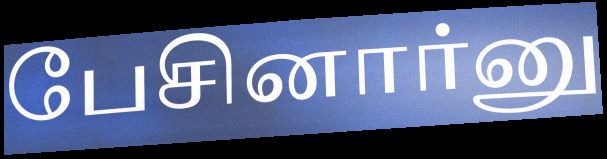
பேசினார்னு